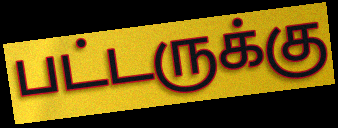
பட்டருக்கு